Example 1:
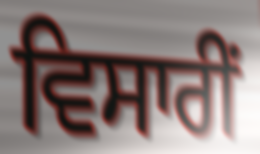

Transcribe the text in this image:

ਵਿਸਾਰੀਂ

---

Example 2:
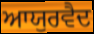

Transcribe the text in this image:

ਆਯੁਰਵੈਦ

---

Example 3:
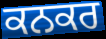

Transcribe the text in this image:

ਕਨਕਰ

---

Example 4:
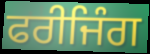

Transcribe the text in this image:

ਫਰੀਜਿੰਗ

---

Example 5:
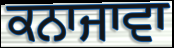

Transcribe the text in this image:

ਕਨਾਜਾਵਾ